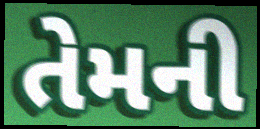
તેમની